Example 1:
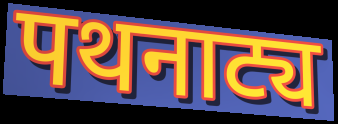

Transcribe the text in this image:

पथनाट्य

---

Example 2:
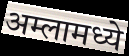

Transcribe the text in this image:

अम्लामध्ये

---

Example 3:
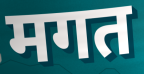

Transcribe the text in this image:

मगत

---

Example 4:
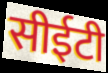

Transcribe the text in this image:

सीईटी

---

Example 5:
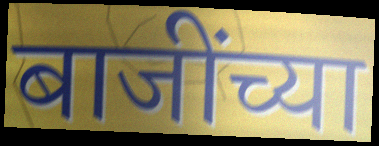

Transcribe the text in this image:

बाजींच्या